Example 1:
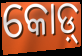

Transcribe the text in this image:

କୋଡ଼୍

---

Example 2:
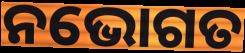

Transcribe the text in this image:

ନଭୋଗତ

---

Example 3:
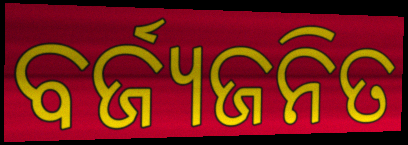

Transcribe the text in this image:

ବର୍ଜ୍ୟଜନିତ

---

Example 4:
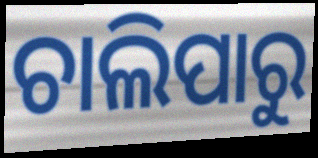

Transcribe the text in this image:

ଚାଲିପାରୁ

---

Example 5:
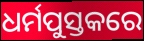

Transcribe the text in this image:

ଧର୍ମପୁସ୍ତକରେ